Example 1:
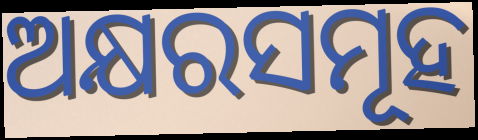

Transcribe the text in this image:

ଅକ୍ଷରସମୂହ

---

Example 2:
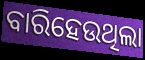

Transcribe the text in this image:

ବାରିହେଉଥିଲା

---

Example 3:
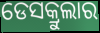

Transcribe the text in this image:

ଡେସକ୍ରୁଲାର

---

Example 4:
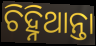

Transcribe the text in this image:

ଚିହ୍ନିଥାନ୍ତା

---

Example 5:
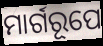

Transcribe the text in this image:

ମାର୍ଗରୂପେ